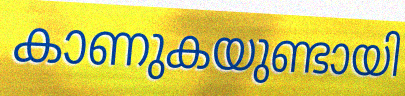
കാണുകയുണ്ടായി